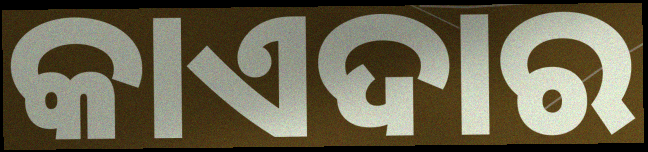
କାଏଦାର